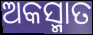
ଅକସ୍ମାତ